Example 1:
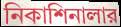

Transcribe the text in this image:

নিকাশিনালার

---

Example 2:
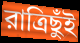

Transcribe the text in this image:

রাত্রিছুঁই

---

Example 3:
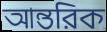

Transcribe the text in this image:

আন্তরিক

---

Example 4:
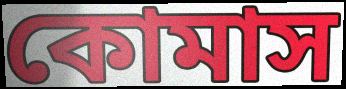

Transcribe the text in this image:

কোমাস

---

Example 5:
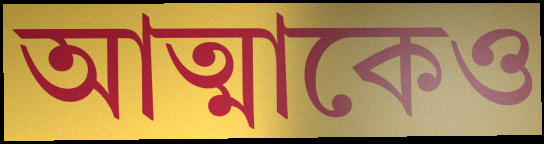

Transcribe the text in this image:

আত্মাকেও